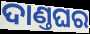
ଦାଣ୍ତଘର